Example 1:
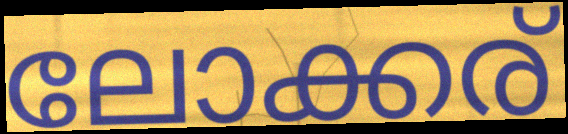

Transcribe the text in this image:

ലോക്കര്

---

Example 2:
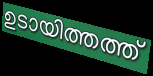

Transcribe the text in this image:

ഉടായിത്തത്ത്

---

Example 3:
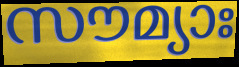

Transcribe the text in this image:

സൗമ്യാഃ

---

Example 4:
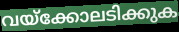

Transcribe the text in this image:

വയ്ക്കോലടിക്കുക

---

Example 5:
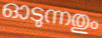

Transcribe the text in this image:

ഓടുന്നതും